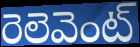
రెలెవెంట్